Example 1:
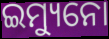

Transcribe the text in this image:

ଇମ୍ୟୁନୋ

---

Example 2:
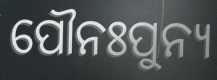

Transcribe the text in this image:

ପୌନଃପୁନ୍ୟ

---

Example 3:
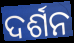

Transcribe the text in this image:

ଦର୍ଶନ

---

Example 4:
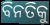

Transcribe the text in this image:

ବିନତିକୁ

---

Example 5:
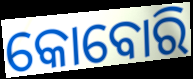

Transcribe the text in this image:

କୋବୋରି